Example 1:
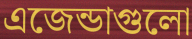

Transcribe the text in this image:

এজেন্ডাগুলো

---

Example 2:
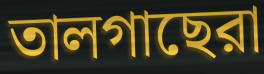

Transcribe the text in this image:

তালগাছেরা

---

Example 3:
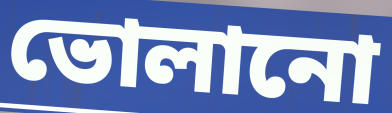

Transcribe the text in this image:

ভোলানো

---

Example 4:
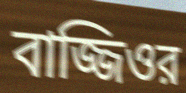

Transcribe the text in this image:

বাজ্জিওর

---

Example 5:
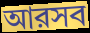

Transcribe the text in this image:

আরসব